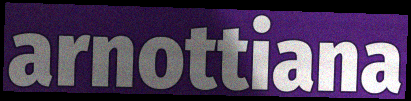
arnottiana